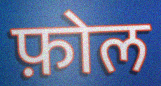
फ़ोल